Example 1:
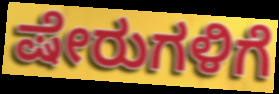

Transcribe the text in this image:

ಷೇರುಗಳಿಗೆ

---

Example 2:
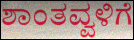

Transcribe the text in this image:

ಶಾಂತವ್ವಳಿಗೆ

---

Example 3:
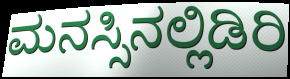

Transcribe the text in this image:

ಮನಸ್ಸಿನಲ್ಲಿಡಿರಿ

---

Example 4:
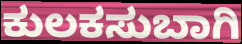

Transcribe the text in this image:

ಕುಲಕಸುಬಾಗಿ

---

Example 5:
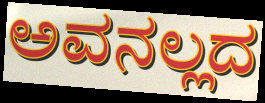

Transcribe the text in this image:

ಅವನಲ್ಲದ